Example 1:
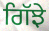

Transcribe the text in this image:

ਗਿੱਝੇ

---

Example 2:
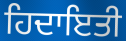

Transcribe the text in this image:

ਹਿਦਾਇਤੀ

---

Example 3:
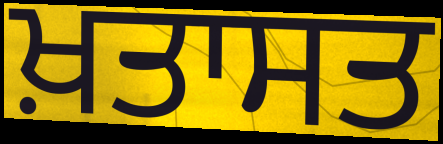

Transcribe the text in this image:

ਖ਼ਤਾਸਤ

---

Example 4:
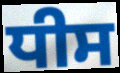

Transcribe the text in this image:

ਧੀਸ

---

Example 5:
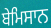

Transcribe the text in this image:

ਬੇਮਿਸਾਨ